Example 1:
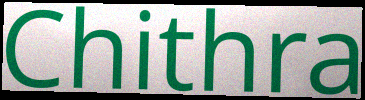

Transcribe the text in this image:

Chithra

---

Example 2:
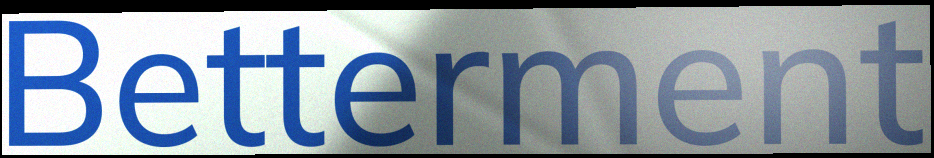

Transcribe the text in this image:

Betterment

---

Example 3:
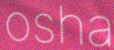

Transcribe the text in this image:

osha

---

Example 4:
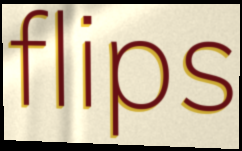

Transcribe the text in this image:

flips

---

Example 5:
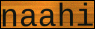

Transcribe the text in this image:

naahi